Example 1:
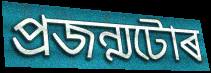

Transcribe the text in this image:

প্ৰজন্মটোৰ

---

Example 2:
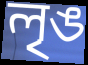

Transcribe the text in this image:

লৃঙ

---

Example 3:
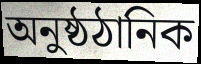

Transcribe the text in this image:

অনুষ্ঠঠানিক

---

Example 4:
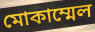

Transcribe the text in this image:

মোকাম্মেল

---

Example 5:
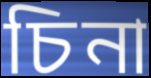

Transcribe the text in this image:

চিনা